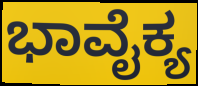
ಭಾವೈಕ್ಯ